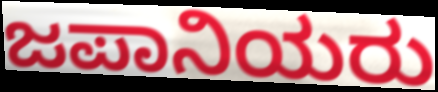
ಜಪಾನಿಯರು